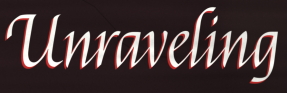
Unraveling